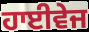
ਹਾਈਵੇਜ